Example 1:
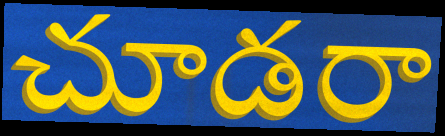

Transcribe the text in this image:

చూడరా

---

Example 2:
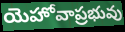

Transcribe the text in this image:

యెహోవాప్రభువు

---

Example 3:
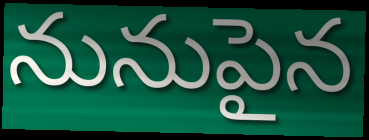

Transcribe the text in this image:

నునుపైన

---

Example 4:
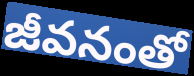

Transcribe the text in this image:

జీవనంతో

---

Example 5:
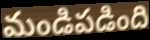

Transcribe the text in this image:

మండిపడింది